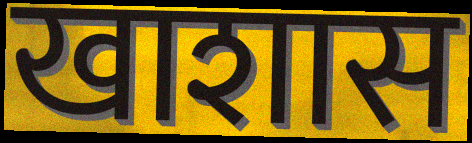
खाशास